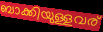
ബാക്കിയുള്ളവര്